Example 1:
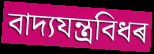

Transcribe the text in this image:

বাদ্যযন্ত্ৰবিধৰ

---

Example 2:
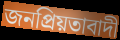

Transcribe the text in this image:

জনপ্ৰিয়তাবাদী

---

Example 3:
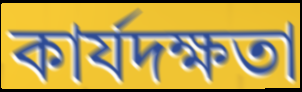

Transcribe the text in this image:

কাৰ্যদক্ষতা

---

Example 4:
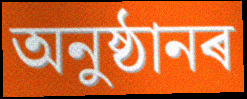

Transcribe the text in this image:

অনুষ্ঠানৰ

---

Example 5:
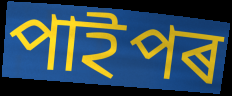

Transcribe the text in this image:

পাইপৰ